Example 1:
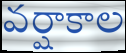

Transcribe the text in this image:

వర్షాకాల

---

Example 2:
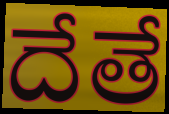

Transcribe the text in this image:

దేతే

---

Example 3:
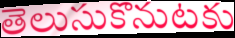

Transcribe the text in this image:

తెలుసుకొనుటకు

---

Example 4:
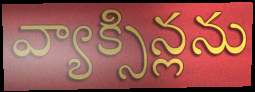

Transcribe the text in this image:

వ్యాక్సిన్లను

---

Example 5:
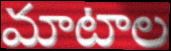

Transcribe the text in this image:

మాటాల